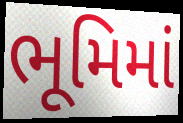
ભૂમિમાં